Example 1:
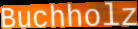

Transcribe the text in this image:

Buchholz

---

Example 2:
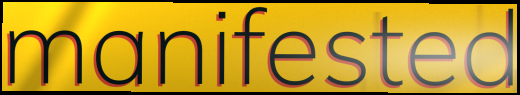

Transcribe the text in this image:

manifested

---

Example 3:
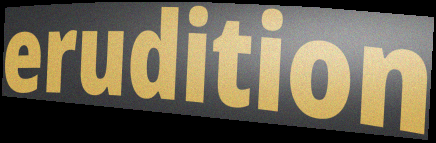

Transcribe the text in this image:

erudition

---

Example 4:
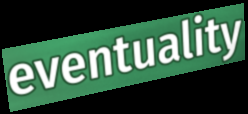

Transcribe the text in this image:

eventuality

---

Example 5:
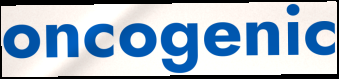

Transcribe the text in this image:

oncogenic